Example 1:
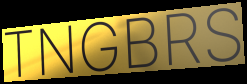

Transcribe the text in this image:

TNGBRS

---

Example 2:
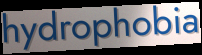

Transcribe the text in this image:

hydrophobia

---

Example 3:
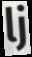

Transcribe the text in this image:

lj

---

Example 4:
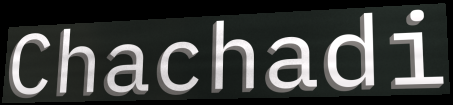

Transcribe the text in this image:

Chachadi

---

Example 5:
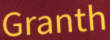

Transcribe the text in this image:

Granth